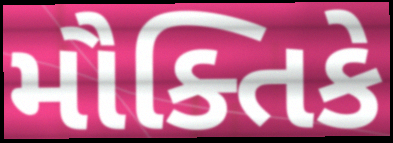
મૌક્તિકે